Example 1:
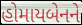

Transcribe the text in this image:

હોમાયબેનને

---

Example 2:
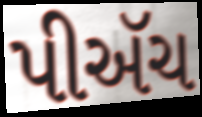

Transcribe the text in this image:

પીઍચ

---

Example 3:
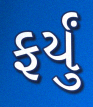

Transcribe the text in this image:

ફર્યું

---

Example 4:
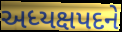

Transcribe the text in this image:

અધ્યક્ષપદને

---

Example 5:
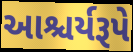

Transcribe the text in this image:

આશ્ચર્યરૂપે